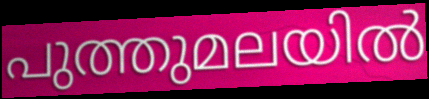
പുത്തുമലയിൽ